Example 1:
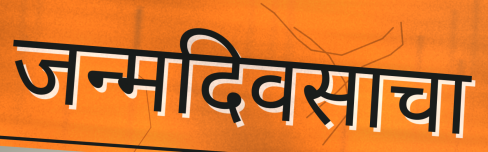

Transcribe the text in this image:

जन्मदिवसाचा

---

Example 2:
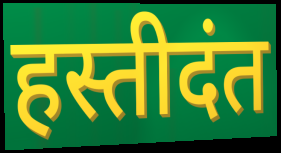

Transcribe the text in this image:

हस्तीदंत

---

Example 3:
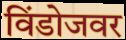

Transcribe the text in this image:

विंडोजवर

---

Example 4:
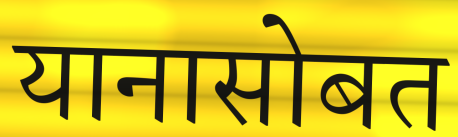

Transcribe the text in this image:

यानासोबत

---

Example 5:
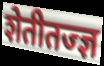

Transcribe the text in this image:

शेतीतज्ज्ञ